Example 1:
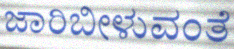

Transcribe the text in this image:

ಜಾರಿಬೀಳುವಂತೆ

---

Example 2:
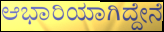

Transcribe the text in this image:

ಆಭಾರಿಯಾಗಿದ್ದೇನೆ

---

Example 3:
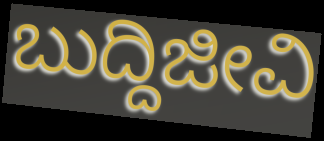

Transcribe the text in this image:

ಬುದ್ದಿಜೀವಿ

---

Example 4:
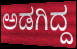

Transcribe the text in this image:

ಅಡಗಿದ್ದ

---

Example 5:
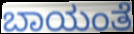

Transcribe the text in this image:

ಬಾಯಂತೆ